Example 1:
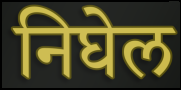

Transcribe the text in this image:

निघेल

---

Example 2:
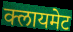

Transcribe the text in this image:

क्लायमेट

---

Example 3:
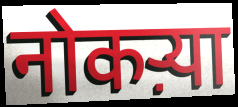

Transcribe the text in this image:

नोकऱ्‍या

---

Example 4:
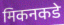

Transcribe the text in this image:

मिकनकडे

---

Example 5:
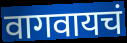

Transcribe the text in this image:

वागवायचं